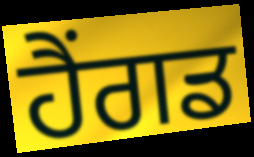
ਹੈਂਗਡ